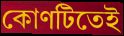
কোণটিতেই